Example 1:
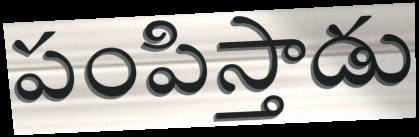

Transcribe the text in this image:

పంపిస్తాడు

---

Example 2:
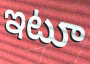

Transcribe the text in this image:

ఇటూ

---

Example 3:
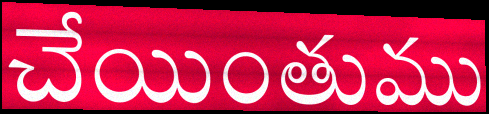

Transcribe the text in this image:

చేయింతుము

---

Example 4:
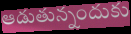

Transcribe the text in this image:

ఆడుతున్నందుకు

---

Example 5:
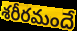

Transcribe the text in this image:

శరీరమందే